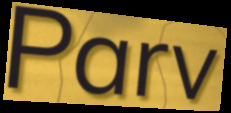
Parv